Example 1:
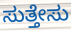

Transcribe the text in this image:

ಸುತ್ತೇಸು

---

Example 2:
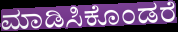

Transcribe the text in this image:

ಮಾಡಿಸಿಕೊಂಡರೆ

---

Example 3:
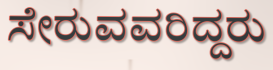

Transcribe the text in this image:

ಸೇರುವವರಿದ್ದರು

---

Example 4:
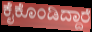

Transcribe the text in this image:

ಕೈಕೊಂಡಿದ್ದಾರೆ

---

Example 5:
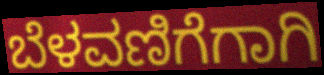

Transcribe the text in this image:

ಬೆಳವಣಿಗೆಗಾಗಿ